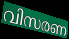
വിസരണ